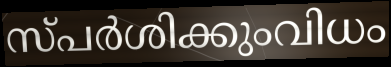
സ്പർശിക്കുംവിധം